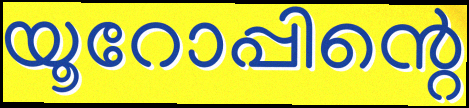
യൂറോപ്പിന്റെ